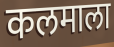
कलमाला